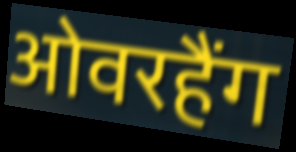
ओवरहैंग